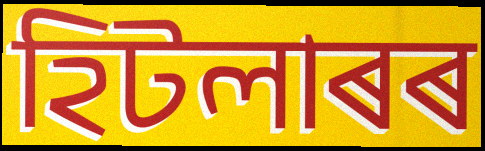
হিটলাৰৰ